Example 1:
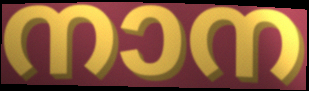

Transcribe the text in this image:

നാന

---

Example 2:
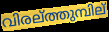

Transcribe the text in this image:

വിരല്ത്തുമ്പില്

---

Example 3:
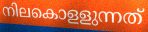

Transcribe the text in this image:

നിലകൊളളുന്നത്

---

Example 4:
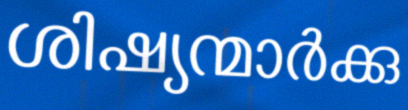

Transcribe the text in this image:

ശിഷ്യന്മാർക്കു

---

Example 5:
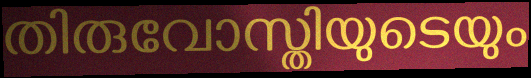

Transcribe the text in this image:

തിരുവോസ്തിയുടെയും